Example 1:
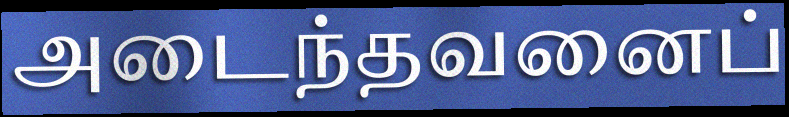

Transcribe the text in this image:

அடைந்தவனைப்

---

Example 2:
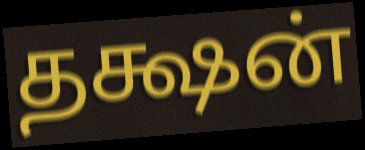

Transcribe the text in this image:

தக்ஷன்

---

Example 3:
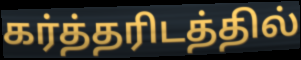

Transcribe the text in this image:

கர்த்தரிடத்தில்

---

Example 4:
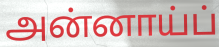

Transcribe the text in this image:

அன்னாய்ப்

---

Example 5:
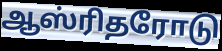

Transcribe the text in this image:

ஆஸ்ரிதரோடு